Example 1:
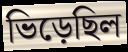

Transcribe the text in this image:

ভিড়েছিল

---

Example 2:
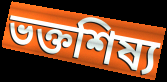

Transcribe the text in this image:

ভক্তশিষ্য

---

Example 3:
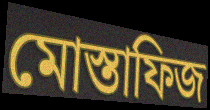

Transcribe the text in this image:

মোস্তাফিজ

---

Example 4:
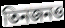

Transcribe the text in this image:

তিনজনও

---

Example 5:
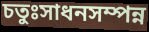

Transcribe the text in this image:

চতুঃসাধনসম্পন্ন